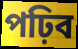
পঢ়িব